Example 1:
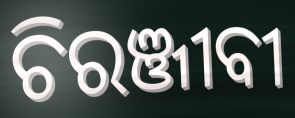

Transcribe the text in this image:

ଚିରଞ୍ଜୀବୀ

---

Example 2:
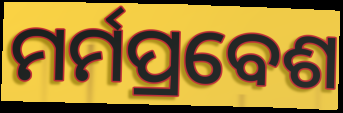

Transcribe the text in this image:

ମର୍ମପ୍ରବେଶ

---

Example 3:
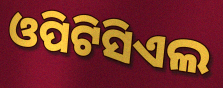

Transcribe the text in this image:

ଓପିଟିସିଏଲ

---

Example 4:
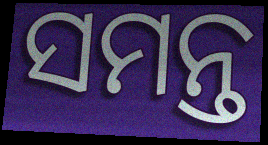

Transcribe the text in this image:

ସମନ୍ତ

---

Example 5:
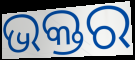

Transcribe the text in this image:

ଭକ୍ତର